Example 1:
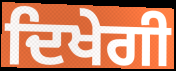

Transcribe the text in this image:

ਦਿਖੇਗੀ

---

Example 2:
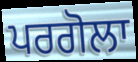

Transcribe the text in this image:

ਪਰਗੋਲਾ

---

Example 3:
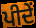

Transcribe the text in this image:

ਪੀਦੇਂ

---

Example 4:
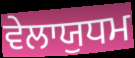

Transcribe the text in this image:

ਵੇਲਾਯੁਧਮ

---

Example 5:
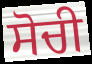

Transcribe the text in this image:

ਸੋਚੀ